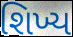
શિખ્ય